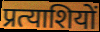
प्रत्‍याशियों